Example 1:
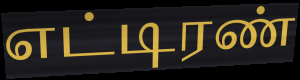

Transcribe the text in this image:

எட்டிரண்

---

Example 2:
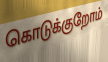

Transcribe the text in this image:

கொடுக்குறோம்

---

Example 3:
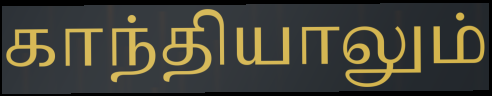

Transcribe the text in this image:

காந்தியாலும்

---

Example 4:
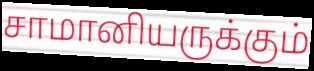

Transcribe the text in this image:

சாமானியருக்கும்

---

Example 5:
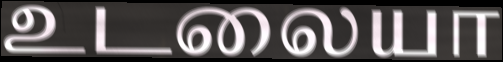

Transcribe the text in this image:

உடலையா